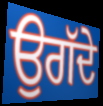
ਉਗੱਦੇ